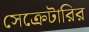
সেক্রেটারির